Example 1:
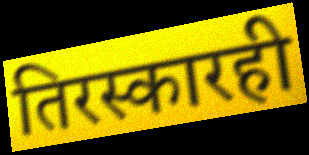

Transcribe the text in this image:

तिरस्कारही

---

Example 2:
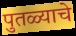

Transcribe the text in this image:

पुतळ्याचे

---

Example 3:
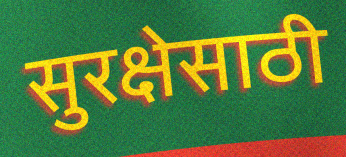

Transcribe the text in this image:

सुरक्षेसाठी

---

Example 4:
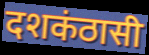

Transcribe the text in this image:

दशकंठासी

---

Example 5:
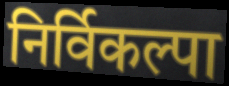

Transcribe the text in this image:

निर्विकल्पा